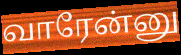
வாரேன்னு